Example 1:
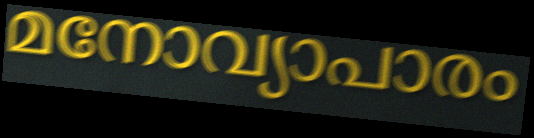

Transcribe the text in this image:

മനോവ്യാപാരം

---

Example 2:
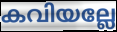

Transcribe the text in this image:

കവിയല്ലേ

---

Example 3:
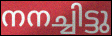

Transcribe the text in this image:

നനച്ചിട്ടു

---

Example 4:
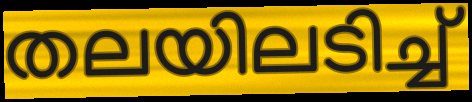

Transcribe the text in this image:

തലയിലടിച്ച്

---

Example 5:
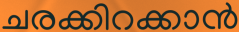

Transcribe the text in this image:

ചരക്കിറക്കാൻ